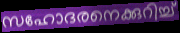
സഹോദരനെക്കുറിച്ച്